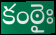
కంఠైః